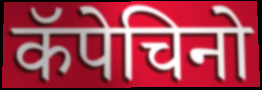
कॅपेचिनो